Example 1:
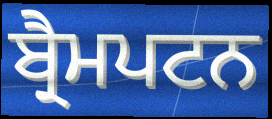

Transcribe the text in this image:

ਬ੍ਰੈਮਪਟਨ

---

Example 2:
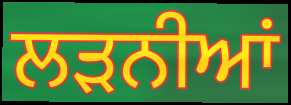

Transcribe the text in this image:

ਲੜਨੀਆਂ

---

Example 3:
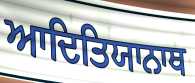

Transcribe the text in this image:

ਆਦਿਤਿਯਾਨਾਥ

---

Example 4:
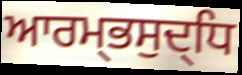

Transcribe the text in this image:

ਆਰਮ੍ਭਸੁਦ੍ਧਿ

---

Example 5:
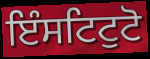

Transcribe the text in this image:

ਇੰਸਟਿਟੁਟੋ